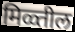
मिळ्तील